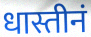
धास्तीनं